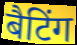
बैटिंग